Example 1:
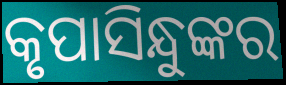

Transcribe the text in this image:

କୃପାସିନ୍ଧୁଙ୍କର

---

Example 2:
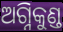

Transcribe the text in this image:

ଅଗ୍ନିକୁଣ୍ଡ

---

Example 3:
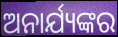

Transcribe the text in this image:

ଅନାର୍ଯ୍ୟଙ୍କର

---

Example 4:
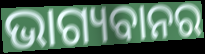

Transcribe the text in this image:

ଭାଗ୍ୟବାନର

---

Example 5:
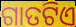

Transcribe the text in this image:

ଗାତଟିଏ